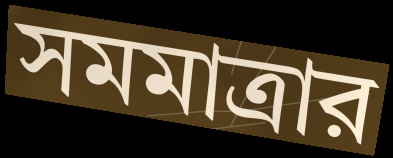
সমমাত্রার